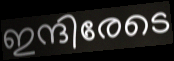
ഇന്ദിരേടെ